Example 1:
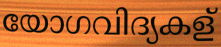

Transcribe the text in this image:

യോഗവിദ്യകള്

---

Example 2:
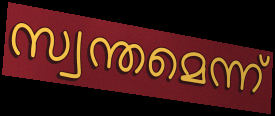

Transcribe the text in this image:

സ്വന്തമെന്ന്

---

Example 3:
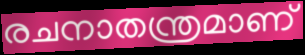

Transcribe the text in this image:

രചനാതന്ത്രമാണ്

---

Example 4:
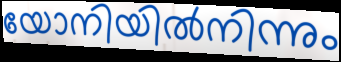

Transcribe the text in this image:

യോനിയിൽനിന്നും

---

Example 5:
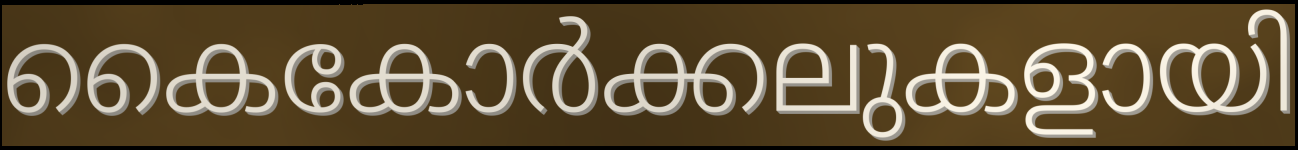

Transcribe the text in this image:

കൈകോർക്കലുകളായി